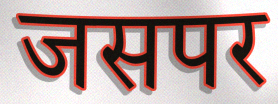
जसपर